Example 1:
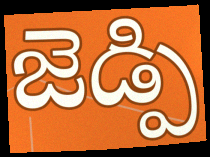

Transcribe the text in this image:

జెడ్పి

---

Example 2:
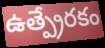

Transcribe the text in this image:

ఉత్ప్రేరకం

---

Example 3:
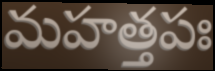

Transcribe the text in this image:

మహత్తపః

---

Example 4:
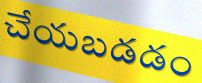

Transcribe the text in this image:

చేయబడడం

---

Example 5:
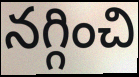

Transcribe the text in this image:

నగ్గించి